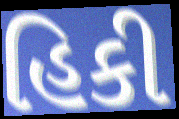
હિકી